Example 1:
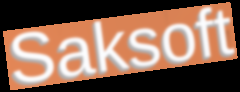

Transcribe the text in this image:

Saksoft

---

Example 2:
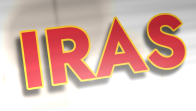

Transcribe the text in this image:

IRAS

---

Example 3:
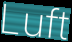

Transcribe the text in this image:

Luft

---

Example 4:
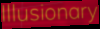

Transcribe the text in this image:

Illusionary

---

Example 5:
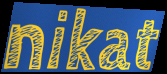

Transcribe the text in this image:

nikat